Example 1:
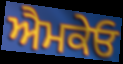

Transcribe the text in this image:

ਐਮਕੇਓ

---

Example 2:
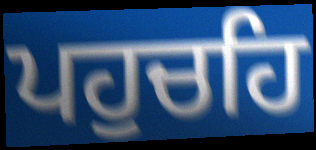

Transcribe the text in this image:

ਪਹੁਚਹਿ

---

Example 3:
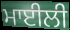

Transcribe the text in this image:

ਮਾਈਲੀ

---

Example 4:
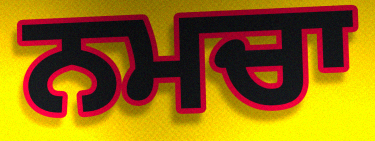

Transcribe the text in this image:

ਨਮਚਾ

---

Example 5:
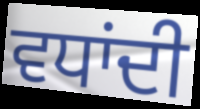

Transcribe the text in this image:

ਵਧਾਂਦੀ